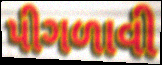
પીગળાવી